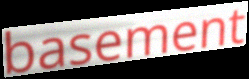
basement